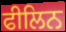
ਫੀਲਿਨ